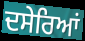
ਦਸੇਰਿਆਂ